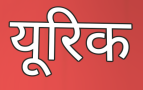
यूरिक